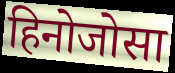
हिनोजोसा